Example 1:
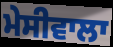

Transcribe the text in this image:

ਮੇਸੀਵਾਲਾ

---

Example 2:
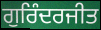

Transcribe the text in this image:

ਗੁਰਿੰਦਰਜੀਤ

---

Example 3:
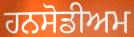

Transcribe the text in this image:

ਹਨਸੋਡੀਅਮ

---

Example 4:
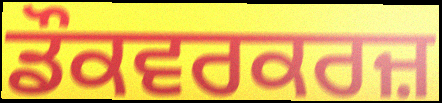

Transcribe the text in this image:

ਡੌਕਵਰਕਰਜ਼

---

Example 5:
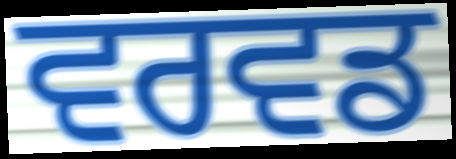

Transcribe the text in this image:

ਵਰਵਡ